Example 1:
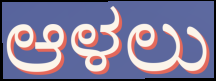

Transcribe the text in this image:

ಆಳಲು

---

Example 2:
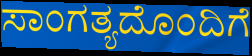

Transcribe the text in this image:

ಸಾಂಗತ್ಯದೊಂದಿಗೆ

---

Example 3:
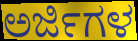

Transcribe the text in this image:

ಅರ್ಜಿಗಳ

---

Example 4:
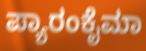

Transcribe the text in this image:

ಪ್ಯಾರಂಕೈಮಾ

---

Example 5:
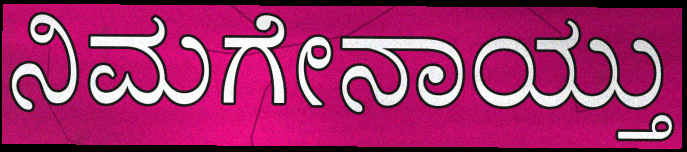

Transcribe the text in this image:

ನಿಮಗೇನಾಯ್ತು